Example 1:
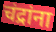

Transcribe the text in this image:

चंद्रांना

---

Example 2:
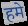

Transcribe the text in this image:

हमे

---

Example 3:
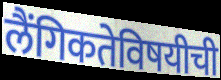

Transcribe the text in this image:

लैंगिकतेविषयीची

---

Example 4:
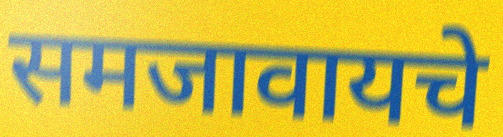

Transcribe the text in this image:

समजावायचे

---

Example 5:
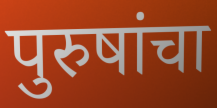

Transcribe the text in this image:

पुरुषांचा